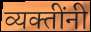
व्यक्‍तींनी